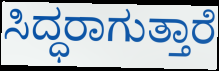
ಸಿದ್ಧರಾಗುತ್ತಾರೆ